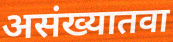
असंख्यातवा